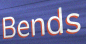
Bends